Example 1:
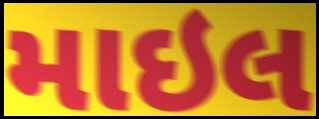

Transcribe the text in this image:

માઇલ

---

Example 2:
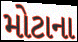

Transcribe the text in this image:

મોટાના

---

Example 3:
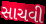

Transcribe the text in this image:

સાચવી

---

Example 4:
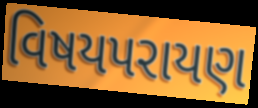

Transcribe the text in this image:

વિષયપરાયણ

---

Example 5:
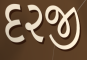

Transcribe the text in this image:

દરજી